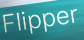
Flipper